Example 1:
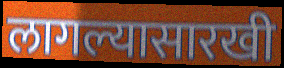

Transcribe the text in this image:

लागल्यासारखी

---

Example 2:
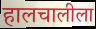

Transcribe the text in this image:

हालचालीला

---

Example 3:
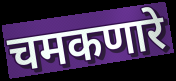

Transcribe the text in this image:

चमकणारे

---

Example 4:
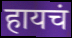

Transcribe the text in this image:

हायचं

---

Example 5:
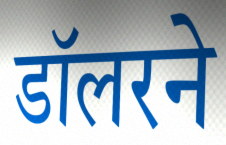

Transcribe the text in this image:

डॉलरने